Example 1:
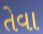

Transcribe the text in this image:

તેવા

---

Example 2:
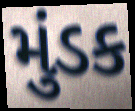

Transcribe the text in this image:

મુંડક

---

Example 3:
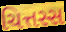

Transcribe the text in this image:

ચિત્તસ્સ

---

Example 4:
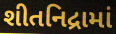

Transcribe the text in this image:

શીતનિદ્રામાં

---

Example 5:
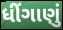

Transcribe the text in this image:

ધીંગાણું